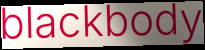
blackbody